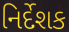
નિર્દેશક